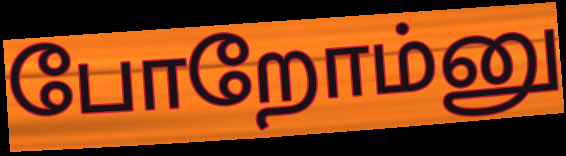
போறோம்னு